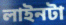
লাইনটা